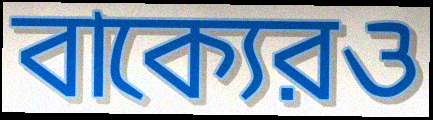
বাক্যেরও